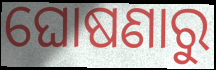
ଘୋଷଣାରୁ